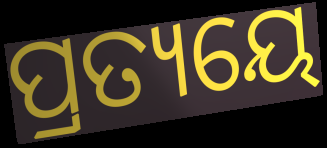
ପ୍ରତ୍ୟୟେ